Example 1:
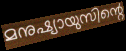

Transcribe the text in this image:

മനുഷ്യായുസിന്റെ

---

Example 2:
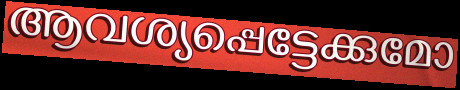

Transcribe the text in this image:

ആവശ്യപ്പെട്ടേക്കുമോ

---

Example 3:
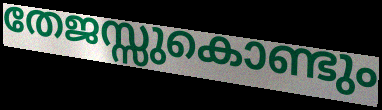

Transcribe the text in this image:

തേജസ്സുകൊണ്ടും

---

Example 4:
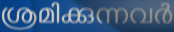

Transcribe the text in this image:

ശ്രമിക്കുന്നവർ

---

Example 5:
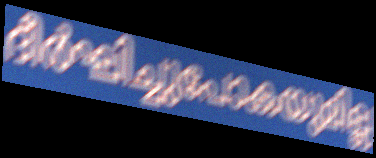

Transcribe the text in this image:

ദീർഘിച്ചുപോകയുമില്ല